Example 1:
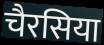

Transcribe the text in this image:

चैरसिया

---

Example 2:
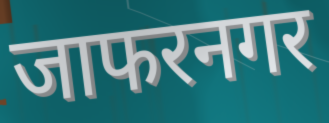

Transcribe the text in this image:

जाफरनगर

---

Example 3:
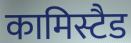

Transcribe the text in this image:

कामिस्टैड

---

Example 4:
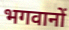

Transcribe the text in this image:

भगवानों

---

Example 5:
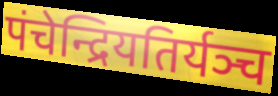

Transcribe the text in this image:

पंचेन्द्रियतिर्यञ्च